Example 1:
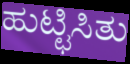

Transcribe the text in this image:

ಹುಟ್ಟಿಸಿತು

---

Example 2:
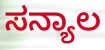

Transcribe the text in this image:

ಸನ್ಯಾಲ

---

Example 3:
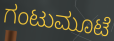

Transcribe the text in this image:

ಗಂಟುಮೂಟೆ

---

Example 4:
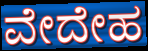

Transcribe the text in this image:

ವೇದೇಹ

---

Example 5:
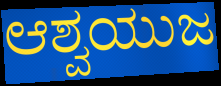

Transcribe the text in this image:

ಆಶ್ವಯುಜ